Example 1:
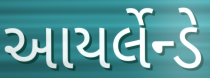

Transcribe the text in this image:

આયર્લેન્ડે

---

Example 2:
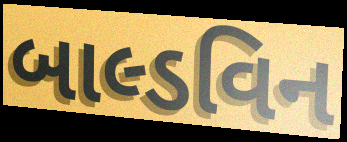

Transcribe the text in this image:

બાલ્ડવિન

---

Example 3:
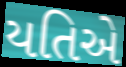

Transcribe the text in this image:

યતિએ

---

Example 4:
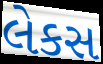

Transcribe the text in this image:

લેકસ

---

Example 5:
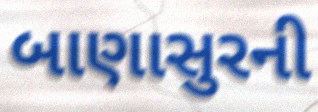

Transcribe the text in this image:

બાણાસુરની